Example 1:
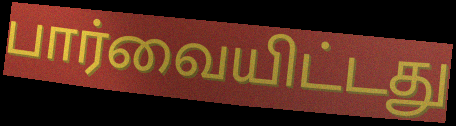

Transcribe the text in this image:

பார்வையிட்டது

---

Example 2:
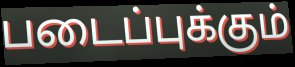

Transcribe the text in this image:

படைப்புக்கும்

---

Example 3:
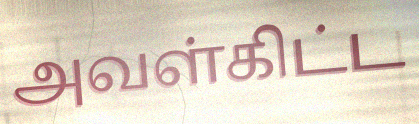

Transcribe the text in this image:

அவள்கிட்ட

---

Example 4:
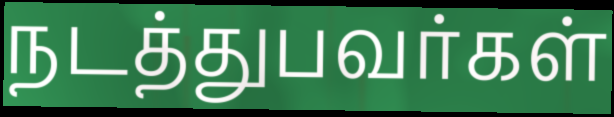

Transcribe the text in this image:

நடத்துபவர்கள்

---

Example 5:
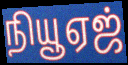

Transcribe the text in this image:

நியூஏஜ்